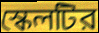
স্কেলটির